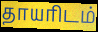
தாயரிடம்